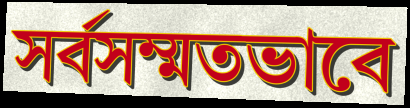
সর্বসম্মতভাবে